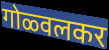
गोळ्वलकर